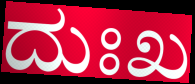
ದುಃಖ